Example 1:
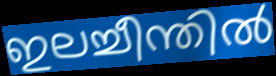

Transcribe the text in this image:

ഇലച്ചീന്തിൽ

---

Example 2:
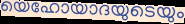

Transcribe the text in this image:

യെഹോയാദയുടെയും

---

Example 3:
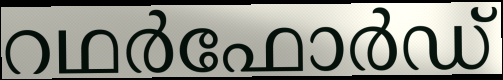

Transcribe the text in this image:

റഥർഫോർഡ്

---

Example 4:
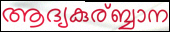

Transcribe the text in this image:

ആദ്യകുര്ബ്ബാന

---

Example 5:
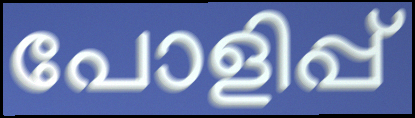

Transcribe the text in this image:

പോളിപ്പ്